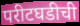
परीटघडीची